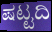
ಷಟ್ಟದಿ